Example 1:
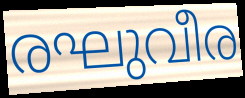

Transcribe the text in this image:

രഘുവീര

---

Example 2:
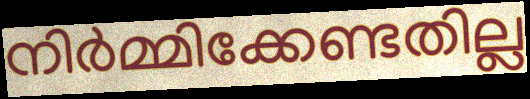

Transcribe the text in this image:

നിർമ്മിക്കേണ്ടതില്ല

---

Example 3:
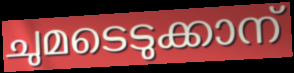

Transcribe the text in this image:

ചുമടെടുക്കാന്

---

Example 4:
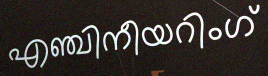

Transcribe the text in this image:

എഞ്ചിനീയറിംഗ്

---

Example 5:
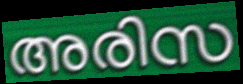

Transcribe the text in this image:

അരിസ